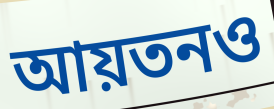
আয়তনও